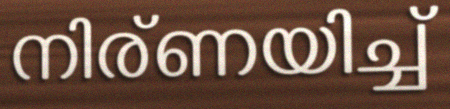
നിര്ണയിച്ച്